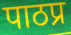
पाठप्र